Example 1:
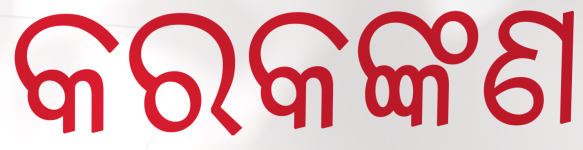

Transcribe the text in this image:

କରକଙ୍କଣ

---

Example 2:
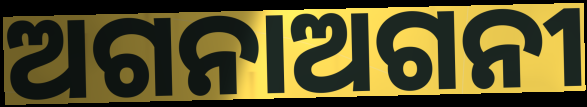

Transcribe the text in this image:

ଅଗନାଅଗନୀ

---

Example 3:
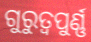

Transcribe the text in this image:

ଗୁରୁତ୍ୱପୁର୍ଣ୍ଣ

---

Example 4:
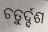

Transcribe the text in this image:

ଚତୁର୍ଦ୍ଦଶ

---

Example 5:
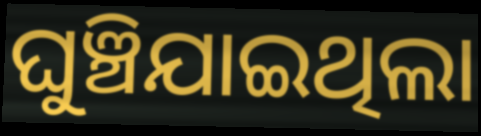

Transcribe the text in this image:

ଘୁଞ୍ଚିଯାଇଥିଲା